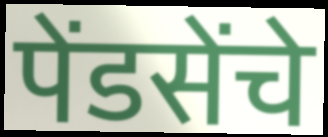
पेंडसेंचे